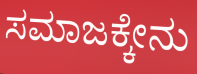
ಸಮಾಜಕ್ಕೇನು